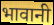
भावानी